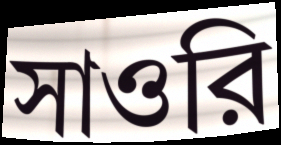
সাওরি